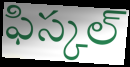
ఫిస్కల్